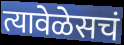
त्यावेळेसचं